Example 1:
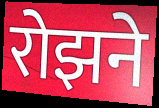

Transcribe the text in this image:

रोझने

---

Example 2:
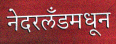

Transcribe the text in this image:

नेदरलँडमधून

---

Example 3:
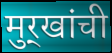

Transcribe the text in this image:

मुर्खांची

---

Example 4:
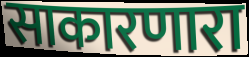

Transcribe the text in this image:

साकारणारा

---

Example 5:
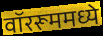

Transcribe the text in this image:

वॉररूममध्ये